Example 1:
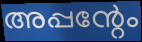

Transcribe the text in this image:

അപ്പന്റേം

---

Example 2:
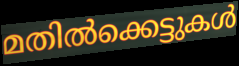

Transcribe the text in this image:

മതിൽക്കെട്ടുകൾ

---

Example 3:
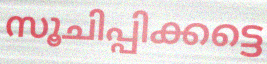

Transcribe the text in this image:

സൂചിപ്പിക്കട്ടെ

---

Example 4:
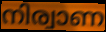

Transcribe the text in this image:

നിര്വാണ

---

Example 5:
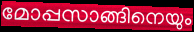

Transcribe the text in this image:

മോപ്പസാങ്ങിനെയും